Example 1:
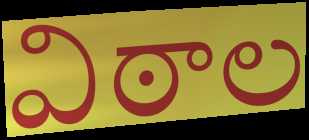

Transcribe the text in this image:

విఠాల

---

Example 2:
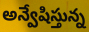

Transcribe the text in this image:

అన్వేషిస్తున్న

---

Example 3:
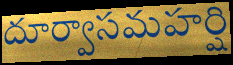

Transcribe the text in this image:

దూర్వాసమహర్షి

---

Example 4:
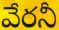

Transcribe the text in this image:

వేరనీ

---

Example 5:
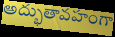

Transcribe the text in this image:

అద్భుతావహంగా